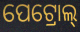
ପେଟ୍ରୋଲ୍